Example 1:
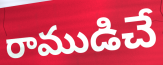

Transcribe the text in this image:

రాముడిచే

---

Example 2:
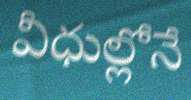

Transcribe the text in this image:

వీధుల్లోనే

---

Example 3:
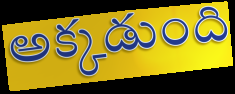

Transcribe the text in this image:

అక్కడుంది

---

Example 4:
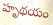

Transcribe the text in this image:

హృథయం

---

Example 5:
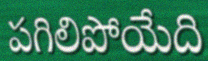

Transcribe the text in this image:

పగిలిపోయేది